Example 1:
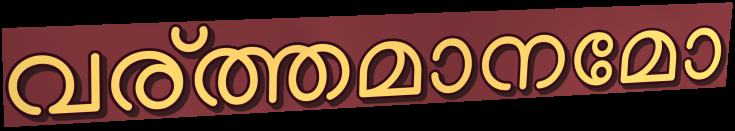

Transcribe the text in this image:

വര്ത്തമാനമോ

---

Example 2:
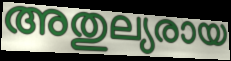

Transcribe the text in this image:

അതുല്യരായ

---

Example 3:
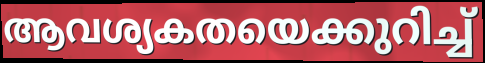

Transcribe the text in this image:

ആവശ്യകതയെക്കുറിച്ച്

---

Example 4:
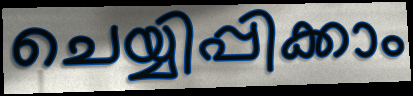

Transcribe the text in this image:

ചെയ്യിപ്പിക്കാം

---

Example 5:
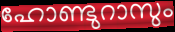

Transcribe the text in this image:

ഹോണ്ടുറാസും